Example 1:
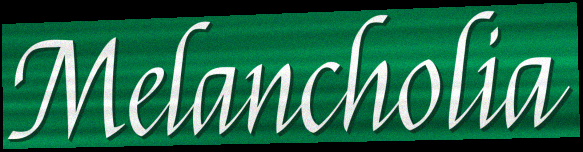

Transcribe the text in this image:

Melancholia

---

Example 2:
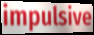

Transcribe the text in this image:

impulsive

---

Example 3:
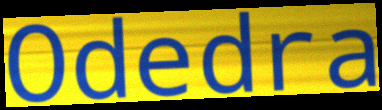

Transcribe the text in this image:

Odedra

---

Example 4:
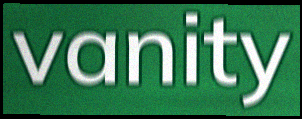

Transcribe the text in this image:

vanity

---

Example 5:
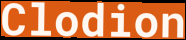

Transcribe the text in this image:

Clodion